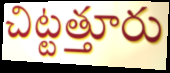
చిట్టత్తూరు